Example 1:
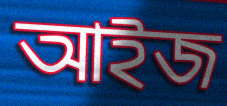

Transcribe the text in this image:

আইজ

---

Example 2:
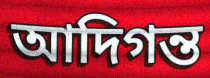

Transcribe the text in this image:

আদিগন্ত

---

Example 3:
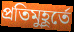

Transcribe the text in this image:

প্রতিমুহূর্তে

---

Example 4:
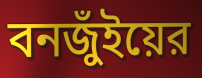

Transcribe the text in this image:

বনজুঁইয়ের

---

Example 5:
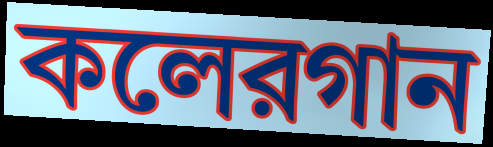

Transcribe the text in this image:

কলেরগান